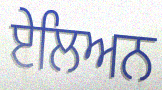
ਏਲਿਅਨ